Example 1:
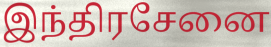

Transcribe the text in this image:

இந்திரசேனை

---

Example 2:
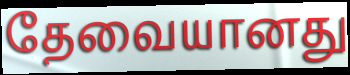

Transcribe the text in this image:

தேவையானது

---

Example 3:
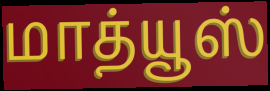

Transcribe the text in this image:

மாத்யூஸ்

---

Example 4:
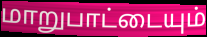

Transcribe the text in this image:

மாறுபாட்டையும்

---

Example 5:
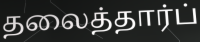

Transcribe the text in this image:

தலைத்தார்ப்